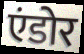
एंडोर